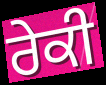
ਰੇਕੀ